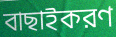
বাছাইকরণ